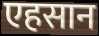
एहसान